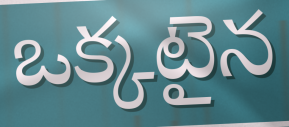
ఒక్కటైన